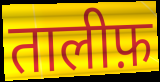
तालीफ़